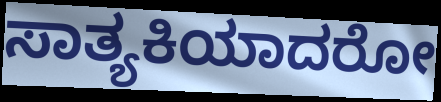
ಸಾತ್ಯಕಿಯಾದರೋ